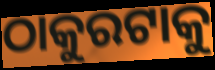
ଠାକୁରଟାକୁ